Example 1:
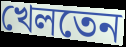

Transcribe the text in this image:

খেলতেন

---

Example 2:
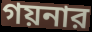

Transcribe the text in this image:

গয়নার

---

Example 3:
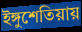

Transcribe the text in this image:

ইঙ্গুশেতিয়ায়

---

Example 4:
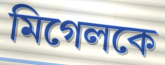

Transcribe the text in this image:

মিগেলকে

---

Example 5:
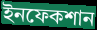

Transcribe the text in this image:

ইনফেকশান